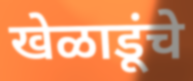
खेळाडूंचे